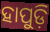
ହାପୁଡ଼ି